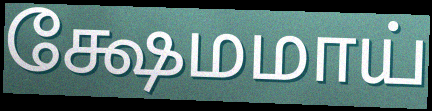
க்ஷேமமாய்